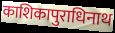
काशिकापुराधिनाथ